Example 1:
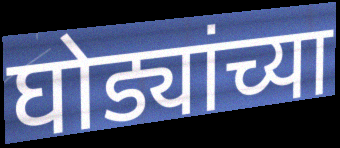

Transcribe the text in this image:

घोड्यांच्या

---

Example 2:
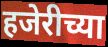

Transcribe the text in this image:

हजेरीच्या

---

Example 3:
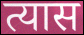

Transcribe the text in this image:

त्यास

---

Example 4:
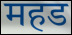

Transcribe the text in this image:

महड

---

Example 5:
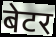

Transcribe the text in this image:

बेटर